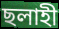
ছলাহী